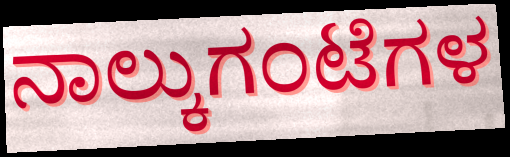
ನಾಲ್ಕುಗಂಟೆಗಳ